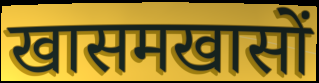
खासमखासों